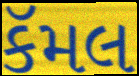
કૅમલ